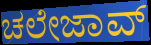
ಚಲೇಜಾವ್